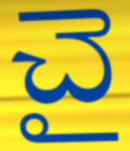
చై